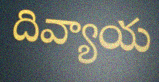
దివ్యాయ